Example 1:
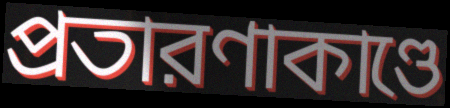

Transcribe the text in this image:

প্রতারণাকাণ্ডে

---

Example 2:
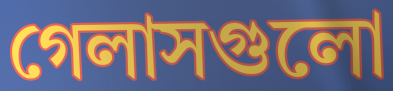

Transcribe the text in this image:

গেলাসগুলো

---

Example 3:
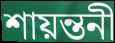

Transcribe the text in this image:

শায়ন্তনী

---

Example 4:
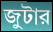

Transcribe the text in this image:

জুটার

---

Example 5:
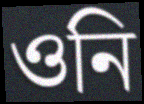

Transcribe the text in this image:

ওনি